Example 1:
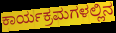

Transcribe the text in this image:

ಕಾರ್ಯಕ್ರಮಗಳಲ್ಲಿನ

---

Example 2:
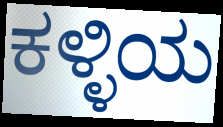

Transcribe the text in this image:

ಕಳ್ಳಿಯ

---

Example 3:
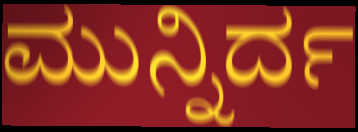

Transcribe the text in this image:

ಮುನ್ನಿರ್ದ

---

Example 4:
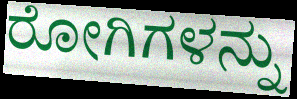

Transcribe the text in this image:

ರೋಗಿಗಳನ್ನು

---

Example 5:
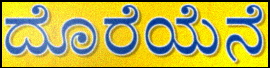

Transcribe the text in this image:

ದೊರೆಯೆನೆ